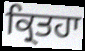
ਕ੍ਰਿਤਹਾ